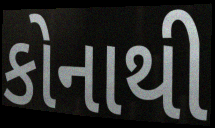
કોનાથી